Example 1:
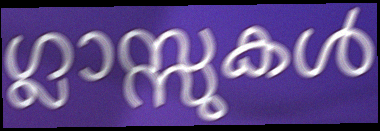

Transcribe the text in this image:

ഗ്ലാസ്സുകൾ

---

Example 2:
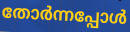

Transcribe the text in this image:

തോർന്നപ്പോൾ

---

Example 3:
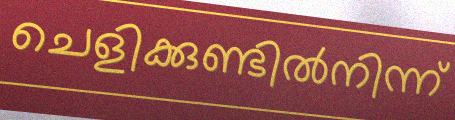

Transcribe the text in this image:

ചെളിക്കുണ്ടിൽനിന്ന്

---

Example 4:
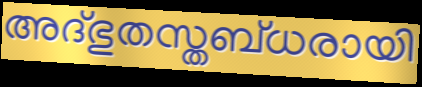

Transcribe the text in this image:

അദ്ഭുതസ്തബ്ധരായി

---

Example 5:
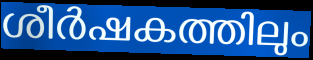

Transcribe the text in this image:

ശീർഷകത്തിലും